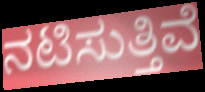
ನಟಿಸುತ್ತಿವೆ